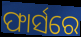
ଫାର୍ସରେ